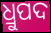
ଧ୍ରୁପଦ